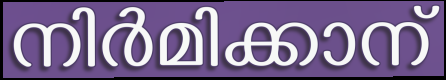
നിർമിക്കാന്